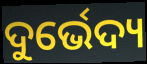
ଦୁର୍ଭେଦ୍ୟ